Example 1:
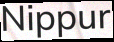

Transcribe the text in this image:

Nippur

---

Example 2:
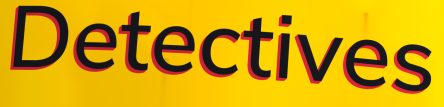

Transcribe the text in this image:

Detectives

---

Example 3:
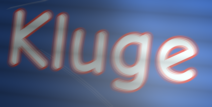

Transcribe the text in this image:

Kluge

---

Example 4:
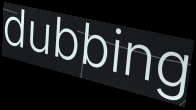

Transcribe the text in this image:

dubbing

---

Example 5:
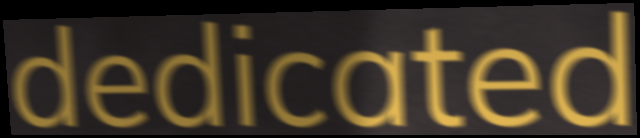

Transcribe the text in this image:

dedicated